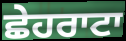
ਛੇਹਰਾਟਾ